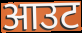
आउट